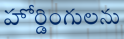
హోర్డింగులను